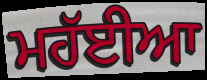
ਮਹੱਈਆ